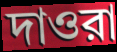
দাওরা